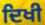
ਦਿਖੀ